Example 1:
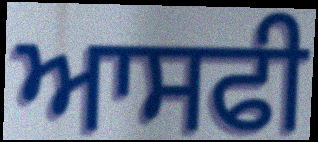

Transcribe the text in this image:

ਆਸਫੀ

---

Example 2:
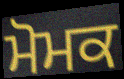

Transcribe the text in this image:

ਮੋਮਕ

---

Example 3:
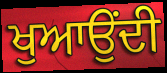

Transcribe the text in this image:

ਖੁਆਉਂਦੀ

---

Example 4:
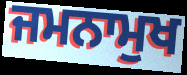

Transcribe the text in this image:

ਜਮਨਾਮੁਖ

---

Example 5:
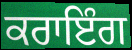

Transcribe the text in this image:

ਕਰਾਇੰਗ